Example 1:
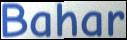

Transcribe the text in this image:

Bahar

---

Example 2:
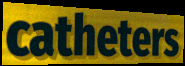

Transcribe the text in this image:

catheters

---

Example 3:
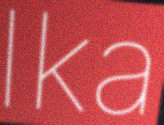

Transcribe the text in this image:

Ika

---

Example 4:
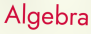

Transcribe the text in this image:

Algebra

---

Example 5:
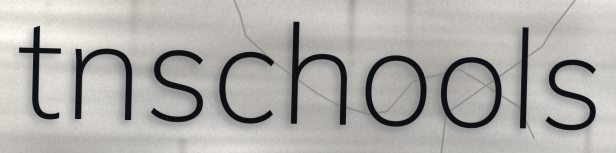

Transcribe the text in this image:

tnschools